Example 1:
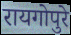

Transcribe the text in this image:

रायगोपुरे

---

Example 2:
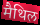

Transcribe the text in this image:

मैथिल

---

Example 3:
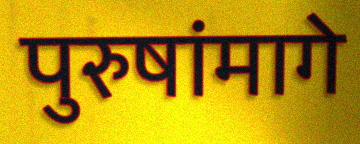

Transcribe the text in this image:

पुरुषांमागे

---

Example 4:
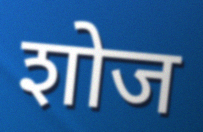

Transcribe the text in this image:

शोज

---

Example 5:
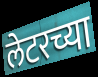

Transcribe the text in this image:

लेटरच्या